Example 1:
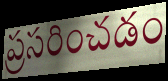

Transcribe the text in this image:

ప్రసరించడం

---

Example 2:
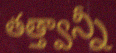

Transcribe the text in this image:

తత్త్వాన్నీ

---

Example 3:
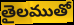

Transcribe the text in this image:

తైలముతో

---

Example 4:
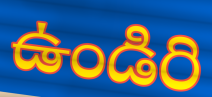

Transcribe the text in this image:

ఉండిరి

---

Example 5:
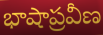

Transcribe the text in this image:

భాషాప్రవీణ